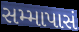
સમ્માપાસં